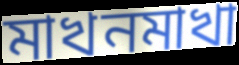
মাখনমাখা